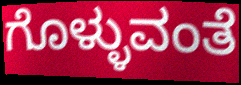
ಗೊಳ್ಳುವಂತೆ